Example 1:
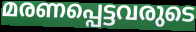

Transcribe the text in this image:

മരണപ്പെട്ടവരുടെ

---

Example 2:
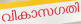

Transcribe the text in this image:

വികാസഗതി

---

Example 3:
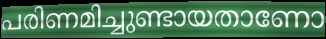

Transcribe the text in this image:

പരിണമിച്ചുണ്ടായതാണോ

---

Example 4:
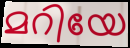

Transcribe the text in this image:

മറിയേ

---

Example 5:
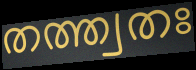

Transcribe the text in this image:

തത്ത്വതഃ